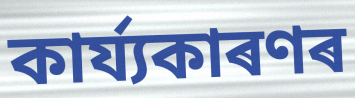
কাৰ্য্যকাৰণৰ